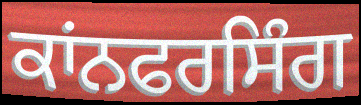
ਕਾਂਨਫਰਸਿੰਗ